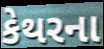
કેથરના